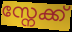
സ്നേക്ക്